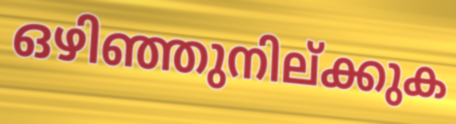
ഒഴിഞ്ഞുനില്ക്കുക